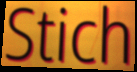
Stich